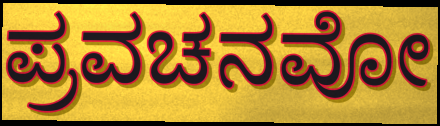
ಪ್ರವಚನವೋ